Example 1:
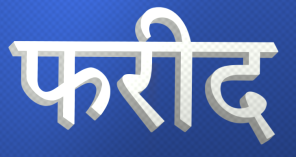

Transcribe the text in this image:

फरीद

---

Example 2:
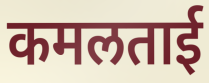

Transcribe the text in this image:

कमलताई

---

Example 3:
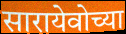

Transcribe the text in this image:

सारायेवोच्या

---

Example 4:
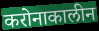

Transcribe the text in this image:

करोनाकालीन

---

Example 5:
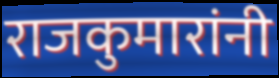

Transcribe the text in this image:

राजकुमारांनी